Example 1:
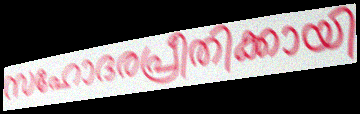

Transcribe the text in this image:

സഹോദരപ്രീതിക്കായി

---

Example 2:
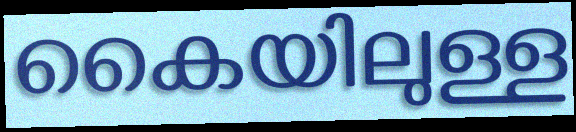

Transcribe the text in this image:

കൈയിലുള്ള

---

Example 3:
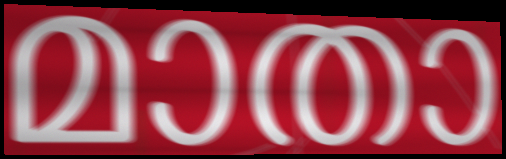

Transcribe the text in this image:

മാതാ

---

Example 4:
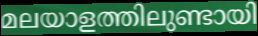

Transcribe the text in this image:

മലയാളത്തിലുണ്ടായി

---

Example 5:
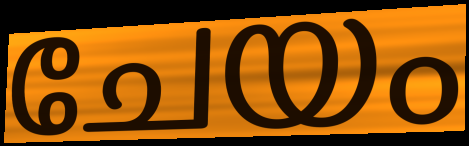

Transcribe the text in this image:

ചേയം